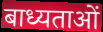
बाध्यताओं